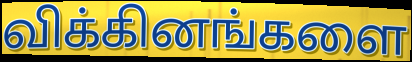
விக்கினங்களை